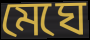
মেঘে